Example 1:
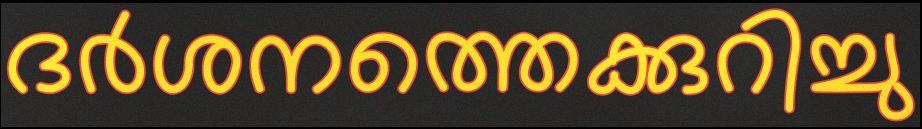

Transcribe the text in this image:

ദർശനത്തെക്കുറിച്ചു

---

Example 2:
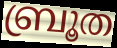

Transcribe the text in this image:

ബ്രൂത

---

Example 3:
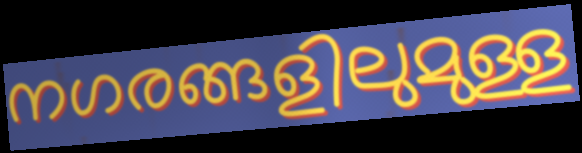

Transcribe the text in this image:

നഗരങ്ങളിലുമുള്ള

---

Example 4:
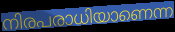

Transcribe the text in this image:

നിരപരാധിയാണെന്ന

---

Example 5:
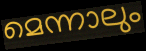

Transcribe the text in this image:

മെന്നാലും